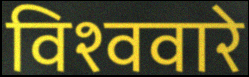
विश्ववारे